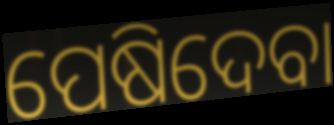
ପେଷିଦେବା